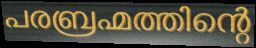
പരബ്രഹ്മത്തിന്റെ